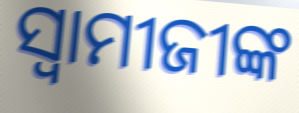
ସ୍ୱାମୀଜୀଙ୍କ